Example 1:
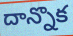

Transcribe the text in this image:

దాన్నొక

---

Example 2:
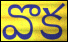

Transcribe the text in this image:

వొక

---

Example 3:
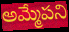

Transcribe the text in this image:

అమ్మేపని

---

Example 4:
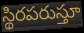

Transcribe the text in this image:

స్థిరపరుస్తూ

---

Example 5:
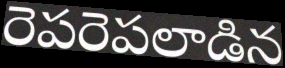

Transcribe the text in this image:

రెపరెపలాడిన